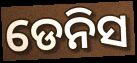
ଡେନିସ